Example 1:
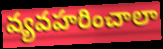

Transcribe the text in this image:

వ్యవహరించాలా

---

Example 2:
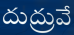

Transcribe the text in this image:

దుద్రువే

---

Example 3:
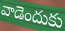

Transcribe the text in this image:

వాడెందుకు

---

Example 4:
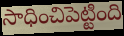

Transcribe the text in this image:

సాధించిపెట్టింది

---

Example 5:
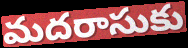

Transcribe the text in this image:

మదరాసుకు